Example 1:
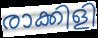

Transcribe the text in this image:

രാക്കിളി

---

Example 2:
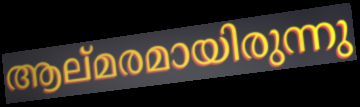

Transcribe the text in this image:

ആല്മരമായിരുന്നു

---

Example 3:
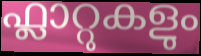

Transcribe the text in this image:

ഫ്ലാറ്റുകളും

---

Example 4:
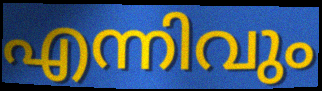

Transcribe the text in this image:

എന്നിവും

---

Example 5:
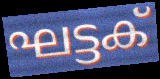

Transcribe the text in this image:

ഘട്ടക്